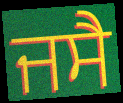
ਜਸੈ